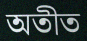
অতীত